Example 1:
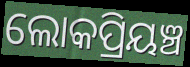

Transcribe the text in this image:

ଲୋକପ୍ରିୟଞ୍ଚ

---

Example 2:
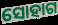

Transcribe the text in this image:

ସୋହାଗ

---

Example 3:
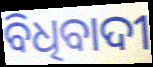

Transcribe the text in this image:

ବିଧିବାଦୀ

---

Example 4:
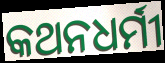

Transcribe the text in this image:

କଥନଧର୍ମୀ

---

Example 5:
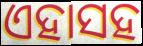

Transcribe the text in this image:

ଏହାସହ